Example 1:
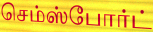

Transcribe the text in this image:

செம்ஸ்போர்ட்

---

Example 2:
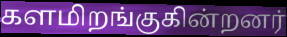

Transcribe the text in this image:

களமிறங்குகின்றனர்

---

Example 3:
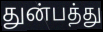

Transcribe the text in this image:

துன்பத்து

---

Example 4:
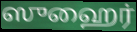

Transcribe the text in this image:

ஸுஹைர்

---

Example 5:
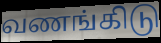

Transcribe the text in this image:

வணங்கிடு